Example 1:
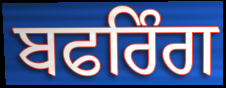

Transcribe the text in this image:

ਬਫਰਿੰਗ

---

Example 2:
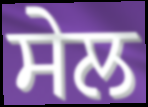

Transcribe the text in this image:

ਸੇਲ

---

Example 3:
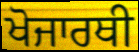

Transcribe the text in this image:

ਖੋਜਾਰਥੀ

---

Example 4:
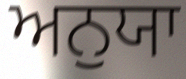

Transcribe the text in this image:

ਅਨੁਯਾ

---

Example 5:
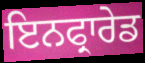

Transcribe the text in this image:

ਇਨਫ੍ਰਾਰੇਡ